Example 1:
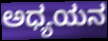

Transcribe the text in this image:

ಅಧ್ಯಯನ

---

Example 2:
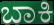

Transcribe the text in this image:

ಬಾಕಿ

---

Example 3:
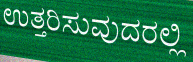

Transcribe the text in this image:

ಉತ್ತರಿಸುವುದರಲ್ಲಿ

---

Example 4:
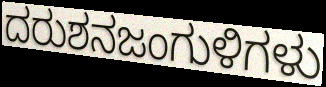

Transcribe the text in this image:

ದರುಶನಜಂಗುಳಿಗಳು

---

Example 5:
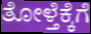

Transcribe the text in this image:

ತೋಳ್ತೆಕ್ಕೆಗೆ